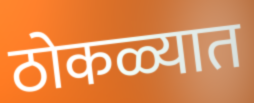
ठोकळ्यात